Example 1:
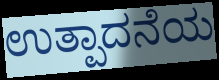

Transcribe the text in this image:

ಉತ್ಪಾದನೆಯ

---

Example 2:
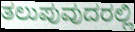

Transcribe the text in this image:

ತಲುಪುವುದರಲ್ಲಿ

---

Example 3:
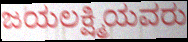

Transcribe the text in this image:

ಜಯಲಕ್ಷ್ಮಿಯವರು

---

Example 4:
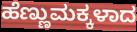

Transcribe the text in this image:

ಹೆಣ್ಣುಮಕ್ಕಳಾದ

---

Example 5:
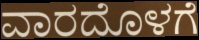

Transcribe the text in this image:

ವಾರದೊಳಗೆ